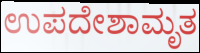
ಉಪದೇಶಾಮೃತ